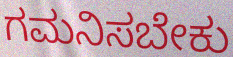
ಗಮನಿಸಬೇಕು